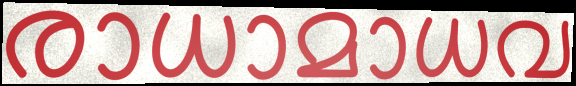
രാധാമാധവ